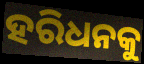
ହରିଧନକୁ